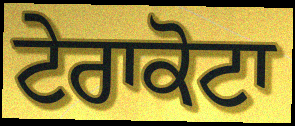
ਟੇਰਾਕੋਟਾ